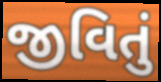
જીવિતું